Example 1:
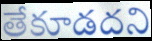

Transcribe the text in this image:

తేకూడదని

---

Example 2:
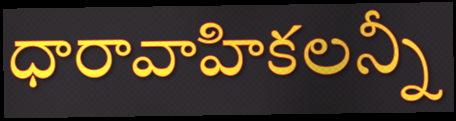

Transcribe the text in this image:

ధారావాహికలన్నీ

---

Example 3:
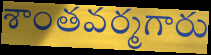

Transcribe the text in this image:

శాంతవర్మగారు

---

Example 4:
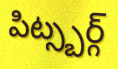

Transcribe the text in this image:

పిట్స్బర్గ్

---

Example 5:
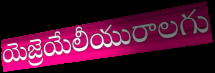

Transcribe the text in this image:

యెజ్రెయేలీయురాలగు